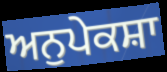
ਅਨੁਪੇਕਸ਼ਾ